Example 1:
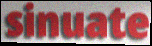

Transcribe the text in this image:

sinuate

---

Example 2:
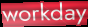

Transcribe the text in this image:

workday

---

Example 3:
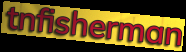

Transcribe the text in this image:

tnfisherman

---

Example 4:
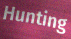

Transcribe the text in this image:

Hunting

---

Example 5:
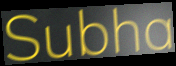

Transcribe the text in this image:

Subha